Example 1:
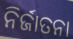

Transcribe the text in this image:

ନିର୍ଜାତନା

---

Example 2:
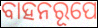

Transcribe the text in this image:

ବାହନରୂପେ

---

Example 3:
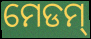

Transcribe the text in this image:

ମେଡମ୍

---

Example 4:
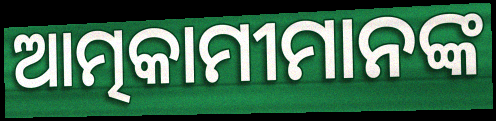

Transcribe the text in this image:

ଆତ୍ମକାମୀମାନଙ୍କ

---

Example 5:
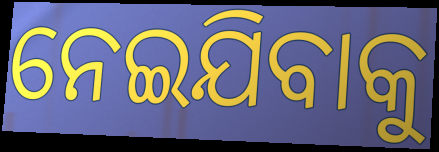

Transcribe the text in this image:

ନେଇଯିବାକୁ